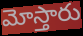
మోస్తారు